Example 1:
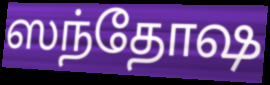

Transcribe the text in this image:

ஸந்தோஷ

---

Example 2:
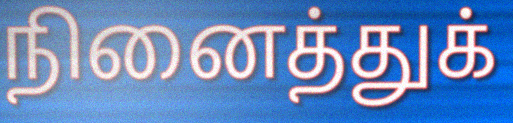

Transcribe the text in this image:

நினைத்துக்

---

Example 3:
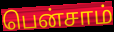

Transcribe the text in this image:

பென்சாம்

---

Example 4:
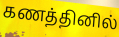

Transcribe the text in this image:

கணத்தினில்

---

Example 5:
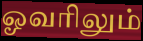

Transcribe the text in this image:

ஓவரிலும்